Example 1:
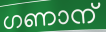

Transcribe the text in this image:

ഗണാന്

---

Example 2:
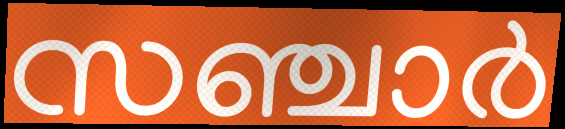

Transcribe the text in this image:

സഞ്ചാർ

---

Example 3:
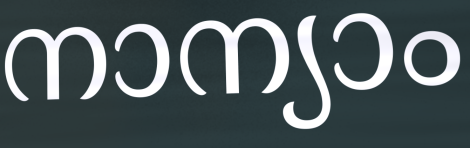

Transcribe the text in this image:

നാന്യാം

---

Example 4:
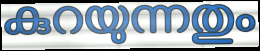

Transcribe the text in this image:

കുറയുന്നതും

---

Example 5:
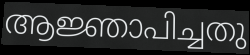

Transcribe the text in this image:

ആജ്ഞാപിച്ചതു